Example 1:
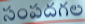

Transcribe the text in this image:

సంపదగల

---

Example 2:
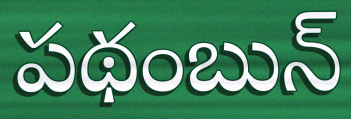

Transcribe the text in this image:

పథంబున్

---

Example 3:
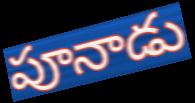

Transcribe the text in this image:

పూనాడు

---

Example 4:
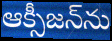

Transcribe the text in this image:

ఆక్సీజన్‌ను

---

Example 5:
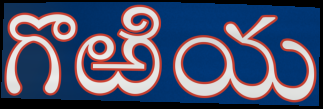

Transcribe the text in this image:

గొఱియ